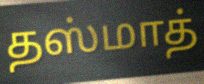
தஸ்மாத்